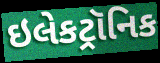
ઇલેકટ્રૉનિક